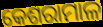
କେଶରାମାଳ